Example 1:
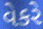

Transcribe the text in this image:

વેકરે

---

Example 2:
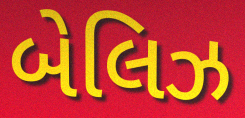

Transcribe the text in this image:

બેલિઝ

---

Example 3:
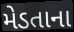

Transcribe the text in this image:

મેડતાના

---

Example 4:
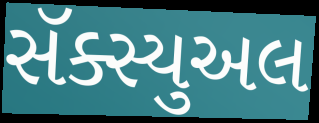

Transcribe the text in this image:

સૅક્સ્યુઅલ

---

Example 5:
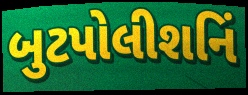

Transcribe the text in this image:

બુટપોલીશનિં